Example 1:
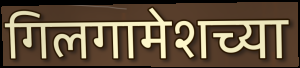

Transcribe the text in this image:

गिलगामेशच्या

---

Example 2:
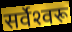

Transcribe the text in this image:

सर्वेश्वरू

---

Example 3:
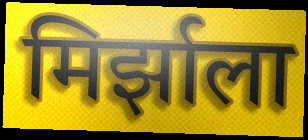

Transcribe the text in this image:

मिर्झाला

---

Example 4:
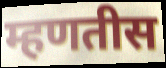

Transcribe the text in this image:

म्हणतीस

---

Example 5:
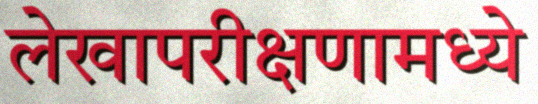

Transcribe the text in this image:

लेखापरीक्षणामध्ये